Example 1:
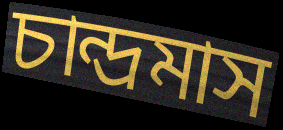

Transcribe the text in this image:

চান্দ্রমাস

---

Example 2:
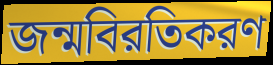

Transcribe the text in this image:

জন্মবিরতিকরণ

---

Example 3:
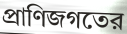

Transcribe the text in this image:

প্রাণিজগতের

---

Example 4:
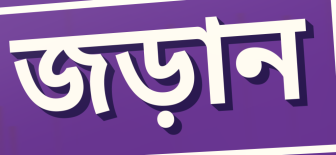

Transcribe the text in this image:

জড়ান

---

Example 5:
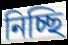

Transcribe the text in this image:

নিচ্ছি